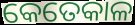
କେତେକାଳ